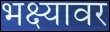
भक्ष्यावर